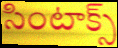
సింటాక్స్